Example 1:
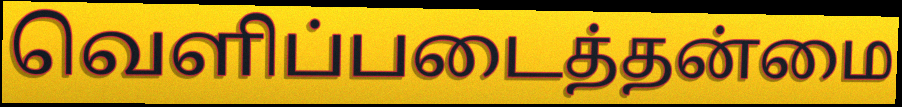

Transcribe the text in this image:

வெளிப்படைத்தன்மை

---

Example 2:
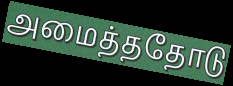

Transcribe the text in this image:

அமைத்ததோடு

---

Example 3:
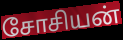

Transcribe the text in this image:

சோசியன்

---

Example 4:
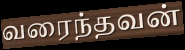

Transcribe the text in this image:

வரைந்தவன்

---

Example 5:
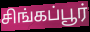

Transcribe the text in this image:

சிங்கப்பூர்